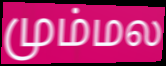
மும்மல